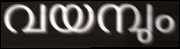
വയമ്പും